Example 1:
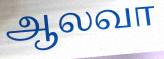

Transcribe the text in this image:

ஆலவா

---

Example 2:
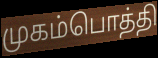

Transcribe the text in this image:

முகம்பொத்தி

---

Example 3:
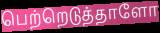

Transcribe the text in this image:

பெற்றெடுத்தாளோ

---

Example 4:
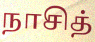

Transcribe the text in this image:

நாசித்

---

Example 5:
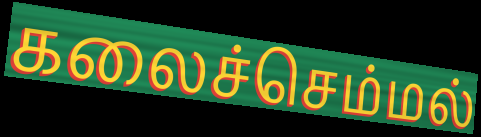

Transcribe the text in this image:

கலைச்செம்மல்